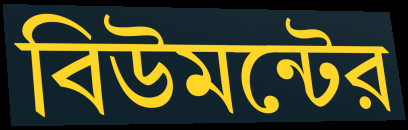
বিউমন্টের